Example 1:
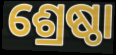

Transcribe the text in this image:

ଶ୍ରେଷ୍ଠା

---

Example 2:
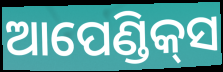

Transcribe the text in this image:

ଆପେଣ୍ଡିକ୍‌ସ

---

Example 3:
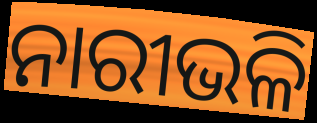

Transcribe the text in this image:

ନାରୀଭଳି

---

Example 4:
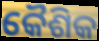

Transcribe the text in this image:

କୈଶିକ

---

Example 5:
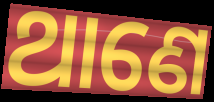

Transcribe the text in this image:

ଥାଣେ